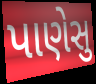
પાણેસુ